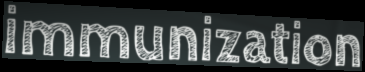
immunization